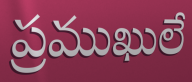
ప్రముఖులే